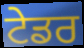
ਟੇਡਰ